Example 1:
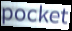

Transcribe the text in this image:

pocket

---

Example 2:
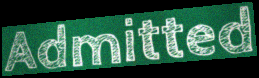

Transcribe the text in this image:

Admitted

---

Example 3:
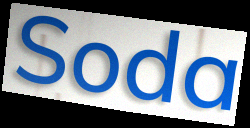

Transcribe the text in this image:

Soda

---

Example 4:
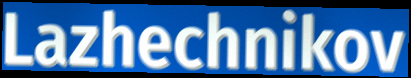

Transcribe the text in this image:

Lazhechnikov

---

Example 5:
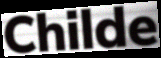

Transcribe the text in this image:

Childe